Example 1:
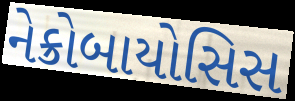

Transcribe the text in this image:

નેક્રોબાયોસિસ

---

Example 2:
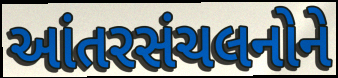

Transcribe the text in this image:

આંતરસંચલનોને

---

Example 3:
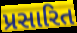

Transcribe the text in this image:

પ્રસારિત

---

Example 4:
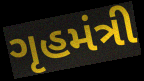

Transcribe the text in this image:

ગૃહમંત્રી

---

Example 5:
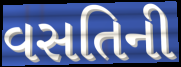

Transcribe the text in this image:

વસતિની